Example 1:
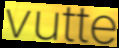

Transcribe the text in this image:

vutte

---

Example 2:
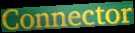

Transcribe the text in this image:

Connector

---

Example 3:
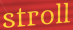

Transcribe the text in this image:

stroll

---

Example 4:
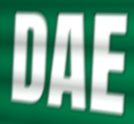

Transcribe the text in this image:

DAE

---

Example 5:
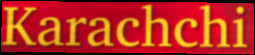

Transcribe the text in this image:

Karachchi